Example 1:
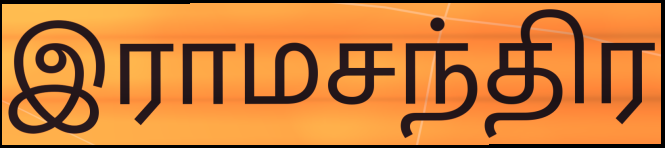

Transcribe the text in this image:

இராமசந்திர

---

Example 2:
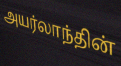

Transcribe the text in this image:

அயர்லாந்தின்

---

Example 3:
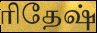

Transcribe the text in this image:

ரிதேஷ்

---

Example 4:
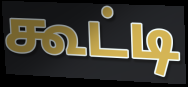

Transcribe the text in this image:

கூட்டி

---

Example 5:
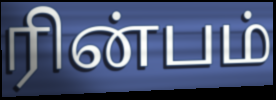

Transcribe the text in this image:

ரின்பம்